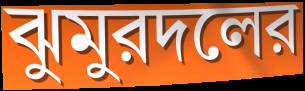
ঝুমুরদলের